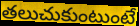
తలుచుకుంటుంటే